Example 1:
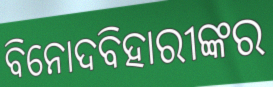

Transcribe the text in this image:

ବିନୋଦବିହାରୀଙ୍କର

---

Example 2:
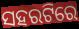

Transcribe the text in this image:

ସହରଟିରେ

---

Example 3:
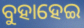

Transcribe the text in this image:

ବୁହାହେଇ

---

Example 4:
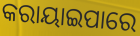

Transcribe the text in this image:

କରାୟାଇପାରେ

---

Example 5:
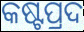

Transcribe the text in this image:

କଷ୍ଟପ୍ରଦ